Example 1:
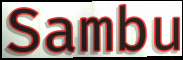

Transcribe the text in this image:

Sambu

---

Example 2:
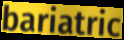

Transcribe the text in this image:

bariatric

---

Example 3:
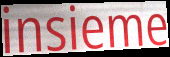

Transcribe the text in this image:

insieme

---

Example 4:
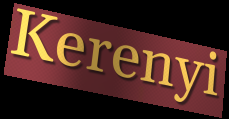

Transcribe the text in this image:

Kerenyi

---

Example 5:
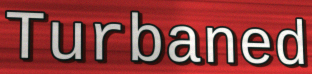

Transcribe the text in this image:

Turbaned